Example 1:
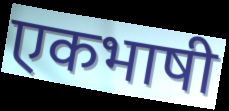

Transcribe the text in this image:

एकभाषी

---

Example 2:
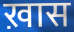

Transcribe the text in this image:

ख़ास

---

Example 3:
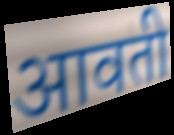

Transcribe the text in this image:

आवती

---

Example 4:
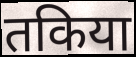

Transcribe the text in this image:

तकिया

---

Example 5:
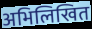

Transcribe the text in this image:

अभिलिखित